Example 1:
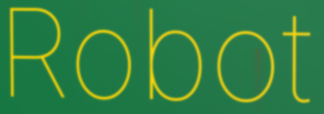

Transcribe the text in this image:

Robot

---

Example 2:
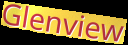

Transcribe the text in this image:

Glenview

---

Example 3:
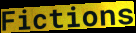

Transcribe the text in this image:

Fictions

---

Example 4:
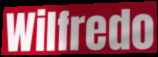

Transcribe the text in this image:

Wilfredo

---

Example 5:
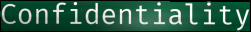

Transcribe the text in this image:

Confidentiality